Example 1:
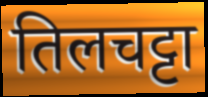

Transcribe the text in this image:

तिलचट्टा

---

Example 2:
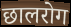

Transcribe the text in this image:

छालरोग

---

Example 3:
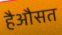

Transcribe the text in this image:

हैऔसत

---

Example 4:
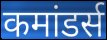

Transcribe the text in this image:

कमांडर्स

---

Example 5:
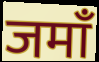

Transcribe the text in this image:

जमाँ